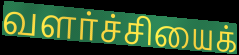
வளர்ச்சியைக்